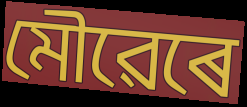
মৌৱেৰে